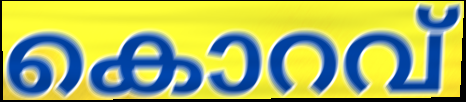
കൊറവ്